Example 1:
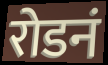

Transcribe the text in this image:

रोडनं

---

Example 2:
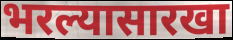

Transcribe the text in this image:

भरल्यासारखा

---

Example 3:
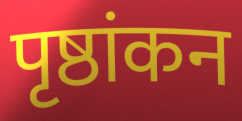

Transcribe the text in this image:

पृष्ठांकन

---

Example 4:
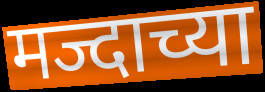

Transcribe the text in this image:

मज्दाच्या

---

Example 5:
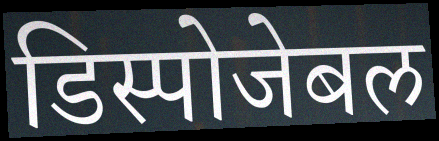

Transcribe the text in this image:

डिस्पोजेबल